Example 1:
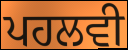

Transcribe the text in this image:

ਪਹਲਵੀ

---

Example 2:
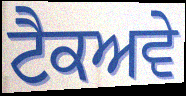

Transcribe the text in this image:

ਟੈਕਅਵੇ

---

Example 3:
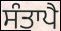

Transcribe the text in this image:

ਸੰਤਾਪੈ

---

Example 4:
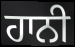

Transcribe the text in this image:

ਹਾਨੀ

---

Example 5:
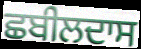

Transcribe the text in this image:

ਛਬੀਲਦਾਸ